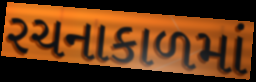
રચનાકાળમાં